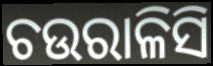
ଚଉରାଳିସି